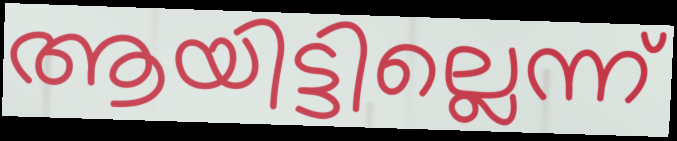
ആയിട്ടില്ലെന്ന്